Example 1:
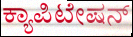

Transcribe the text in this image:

ಕ್ಯಾಪಿಟೇಷನ್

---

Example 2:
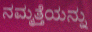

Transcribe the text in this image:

ನಮ್ಮತ್ತೆಯನ್ನು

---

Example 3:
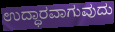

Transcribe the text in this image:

ಉದ್ಧಾರವಾಗುವುದು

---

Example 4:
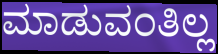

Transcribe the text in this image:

ಮಾಡುವಂತಿಲ್ಲ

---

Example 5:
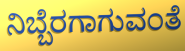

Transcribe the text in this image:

ನಿಬ್ಬೆರಗಾಗುವಂತೆ